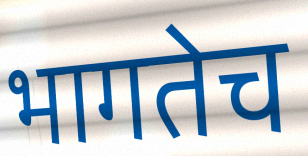
भागतेच